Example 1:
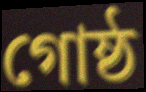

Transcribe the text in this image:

গোষ্ঠ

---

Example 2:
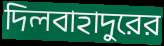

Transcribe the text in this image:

দিলবাহাদুরের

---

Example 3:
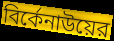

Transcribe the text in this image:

বির্কেনাউয়ের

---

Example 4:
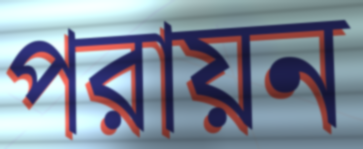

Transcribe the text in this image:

পরায়ন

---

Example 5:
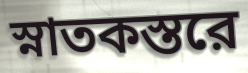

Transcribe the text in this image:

স্নাতকস্তরে